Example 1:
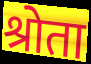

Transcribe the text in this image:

श्रोता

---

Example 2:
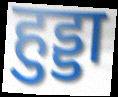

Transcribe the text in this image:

हुड्डा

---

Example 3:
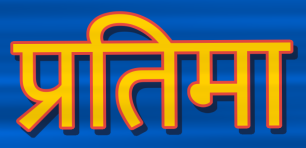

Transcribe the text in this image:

प्रतिमा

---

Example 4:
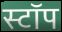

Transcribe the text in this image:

स्टॉप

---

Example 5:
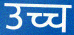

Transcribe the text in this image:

उच्च